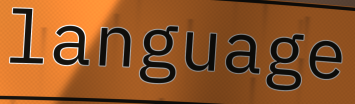
language